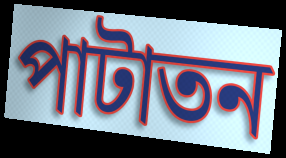
পাটাতন